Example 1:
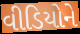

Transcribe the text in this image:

વીડિયોને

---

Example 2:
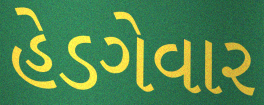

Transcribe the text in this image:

હેડગેવાર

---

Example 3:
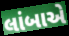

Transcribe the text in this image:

લાંબાએ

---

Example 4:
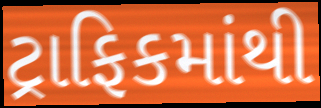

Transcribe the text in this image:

ટ્રાફિકમાંથી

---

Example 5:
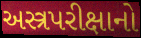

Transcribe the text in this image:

અસ્ત્રપરીક્ષાનો